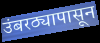
उंबरठ्यापासून